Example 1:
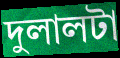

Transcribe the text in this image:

দুলালটা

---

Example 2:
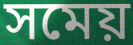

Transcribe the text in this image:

সমেয়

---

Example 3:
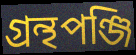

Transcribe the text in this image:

গ্রন্থপঞ্জি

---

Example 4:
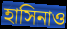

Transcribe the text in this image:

হাসিনাও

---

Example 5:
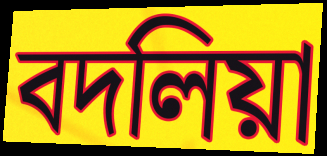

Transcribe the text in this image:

বদলিয়া